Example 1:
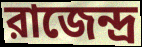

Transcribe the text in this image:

রাজেন্দ্র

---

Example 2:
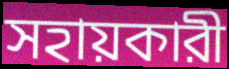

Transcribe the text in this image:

সহায়কারী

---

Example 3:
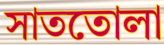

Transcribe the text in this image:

সাততোলা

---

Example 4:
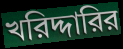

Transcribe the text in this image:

খরিদ্দারির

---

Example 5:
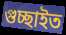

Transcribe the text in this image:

গুচ্ছাইত